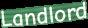
Landlord